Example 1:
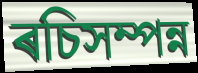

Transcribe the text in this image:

ৰচিসম্পন্ন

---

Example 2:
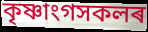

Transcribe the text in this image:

কৃষ্ণাংগসকলৰ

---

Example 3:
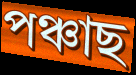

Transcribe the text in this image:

পঞ্চাছ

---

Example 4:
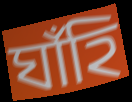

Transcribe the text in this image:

ঘাঁহি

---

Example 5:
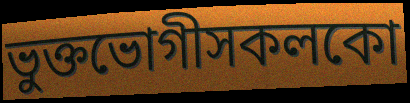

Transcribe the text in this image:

ভুক্তভোগীসকলকো